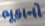
ભૂકાનો